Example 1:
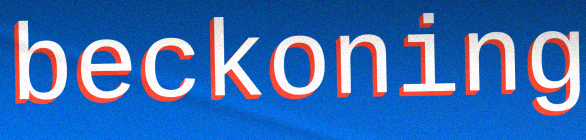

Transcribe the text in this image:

beckoning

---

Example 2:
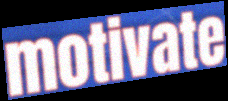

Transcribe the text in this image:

motivate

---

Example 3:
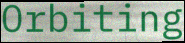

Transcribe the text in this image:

Orbiting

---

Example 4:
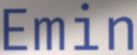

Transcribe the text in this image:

Emin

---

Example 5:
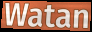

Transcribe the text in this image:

Watan